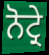
ਨੋਟ੍ਰੇ